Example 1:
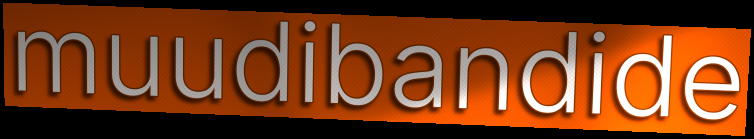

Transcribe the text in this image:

muudibandide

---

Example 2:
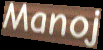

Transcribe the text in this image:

Manoj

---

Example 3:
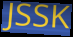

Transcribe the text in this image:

JSSK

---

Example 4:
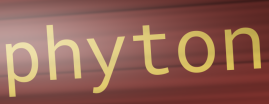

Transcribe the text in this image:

phyton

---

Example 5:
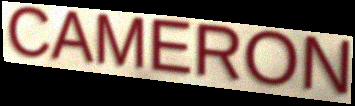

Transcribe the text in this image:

CAMERON